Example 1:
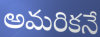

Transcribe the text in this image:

అమరికనే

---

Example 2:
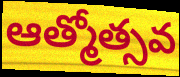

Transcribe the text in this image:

ఆత్మోత్సవ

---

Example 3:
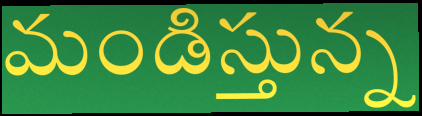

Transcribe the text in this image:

మండిస్తున్న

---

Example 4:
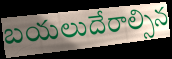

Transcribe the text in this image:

బయలుదేరాల్సిన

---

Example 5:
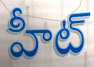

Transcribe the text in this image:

హీట్